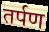
तर्पण